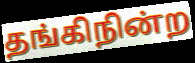
தங்கிநின்ற